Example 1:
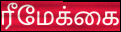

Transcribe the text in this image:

ரீமேக்கை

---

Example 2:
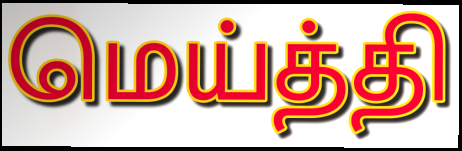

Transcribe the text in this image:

மெய்த்தி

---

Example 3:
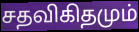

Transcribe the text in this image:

சதவிகிதமும்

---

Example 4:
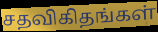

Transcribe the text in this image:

சதவிகிதங்கள்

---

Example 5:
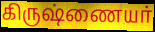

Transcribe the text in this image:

கிருஷ்ணையர்